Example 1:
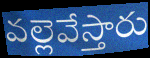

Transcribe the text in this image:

వల్లెవేస్తారు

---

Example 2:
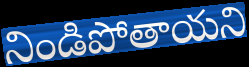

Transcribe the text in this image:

నిండిపోతాయని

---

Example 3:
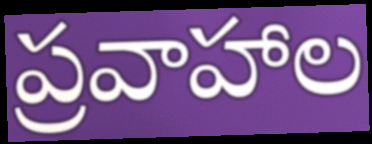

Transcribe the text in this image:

ప్రవాహాల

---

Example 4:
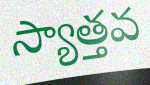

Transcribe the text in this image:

స్యాత్తవ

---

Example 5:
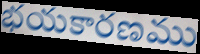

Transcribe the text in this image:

భయకారణము